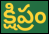
క్షిప్రం